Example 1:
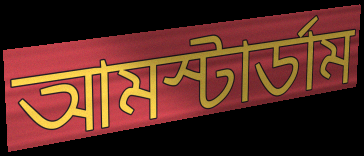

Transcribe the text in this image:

আমস্টার্ডাম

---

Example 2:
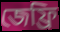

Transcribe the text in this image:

জেফ্রি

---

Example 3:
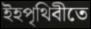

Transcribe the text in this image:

ইহপৃথিবীতে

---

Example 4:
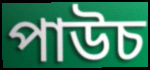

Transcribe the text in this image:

পাউচ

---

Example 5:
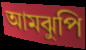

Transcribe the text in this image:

আমঝুপি